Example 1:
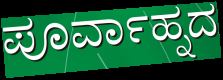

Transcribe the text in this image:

ಪೂರ್ವಾಹ್ನದ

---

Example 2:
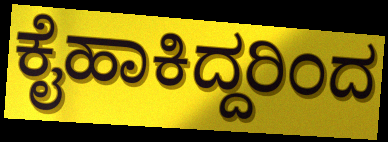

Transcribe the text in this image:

ಕೈಹಾಕಿದ್ದರಿಂದ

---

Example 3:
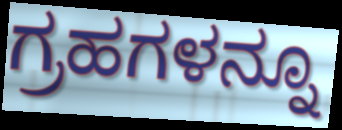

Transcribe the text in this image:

ಗ್ರಹಗಳನ್ನೂ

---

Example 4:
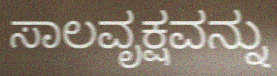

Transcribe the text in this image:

ಸಾಲವೃಕ್ಷವನ್ನು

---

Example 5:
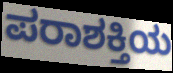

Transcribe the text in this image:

ಪರಾಶಕ್ತಿಯ